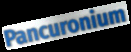
Pancuronium